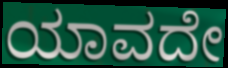
ಯಾವದೇ